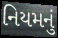
નિયમનું